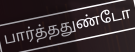
பார்த்ததுண்டோ